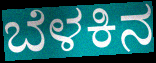
ಬೆಳಕಿನ